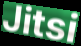
Jitsi